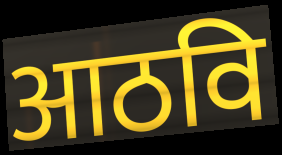
आठवि